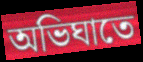
অভিঘাতে